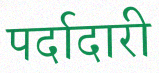
पर्दादारी